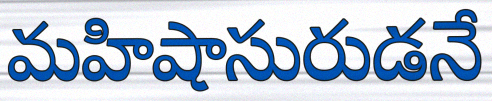
మహిషాసురుడనే